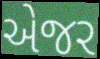
એજર